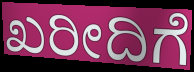
ಖರೀದಿಗೆ